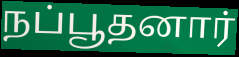
நப்பூதனார்